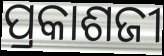
ପ୍ରକାଶଜୀ